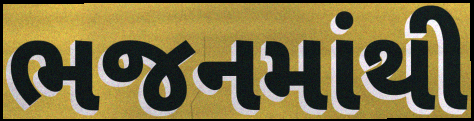
ભજનમાંથી